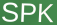
SPK